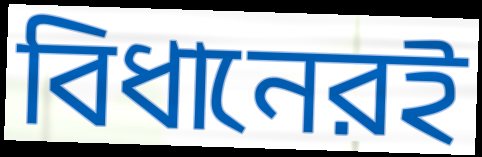
বিধানেরই